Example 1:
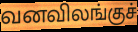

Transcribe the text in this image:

வனவிலங்குச்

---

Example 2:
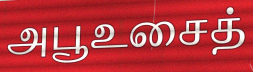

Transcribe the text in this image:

அபூஉசைத்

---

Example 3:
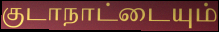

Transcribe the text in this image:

குடாநாட்டையும்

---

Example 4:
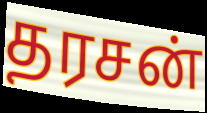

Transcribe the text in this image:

தரசன்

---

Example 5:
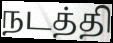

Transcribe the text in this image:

நடத்தி